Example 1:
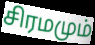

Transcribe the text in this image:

சிரமமும்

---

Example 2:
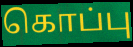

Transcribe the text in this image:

கொப்பு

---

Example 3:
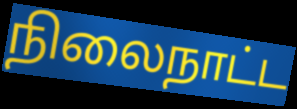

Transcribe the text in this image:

நிலைநாட்ட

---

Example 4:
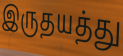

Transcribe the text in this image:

இருதயத்து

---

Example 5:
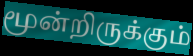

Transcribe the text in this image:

மூன்றிருக்கும்